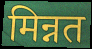
मिन्नत